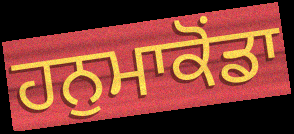
ਹਨੁਮਾਕੋਂਡਾ